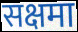
सक्षमा